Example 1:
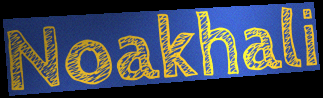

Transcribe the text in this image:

Noakhali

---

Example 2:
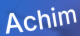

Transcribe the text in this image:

Achim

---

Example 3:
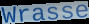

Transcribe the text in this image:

Wrasse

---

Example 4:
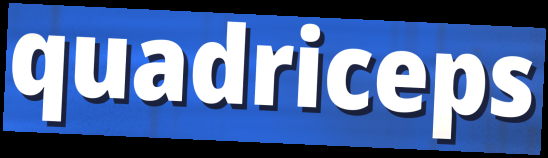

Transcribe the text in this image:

quadriceps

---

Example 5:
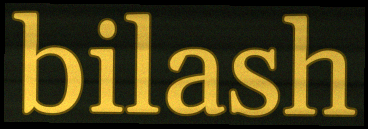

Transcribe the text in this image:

bilash